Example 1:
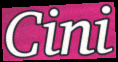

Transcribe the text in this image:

Cini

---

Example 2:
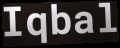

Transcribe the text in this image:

Iqbal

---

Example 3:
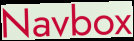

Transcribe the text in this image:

Navbox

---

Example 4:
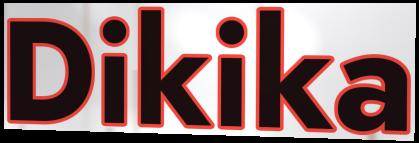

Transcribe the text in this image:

Dikika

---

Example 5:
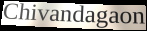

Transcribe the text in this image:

Chivandagaon